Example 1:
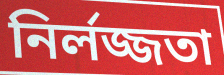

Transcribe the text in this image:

নির্লজ্জতা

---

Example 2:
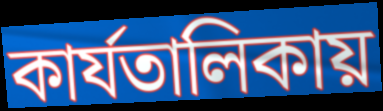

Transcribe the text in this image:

কার্যতালিকায়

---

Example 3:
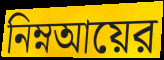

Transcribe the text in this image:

নিম্নআয়ের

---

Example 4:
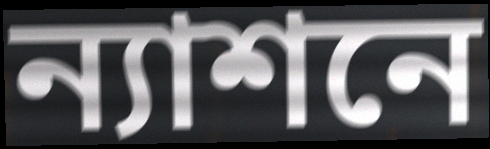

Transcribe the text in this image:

ন্যাশনে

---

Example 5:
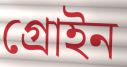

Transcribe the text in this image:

গ্রোইন